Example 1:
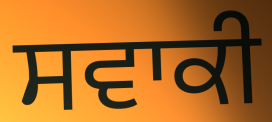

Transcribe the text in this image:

ਸਵਾਕੀ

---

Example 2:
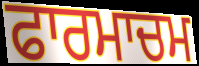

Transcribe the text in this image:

ਫਾਰਮਾਚਮ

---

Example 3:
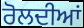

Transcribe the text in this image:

ਰੋਲਦੀਆਂ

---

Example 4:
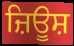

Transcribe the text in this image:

ਜ਼ਿਊਸ਼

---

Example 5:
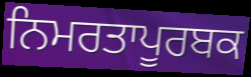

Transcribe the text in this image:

ਨਿਮਰਤਾਪੂਰਬਕ